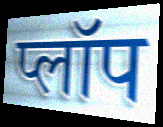
प्लॉप